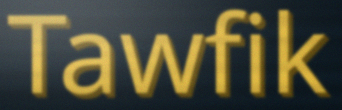
Tawfik